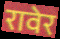
रावेर